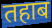
तहाब